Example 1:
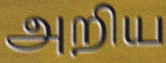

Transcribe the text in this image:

அறிய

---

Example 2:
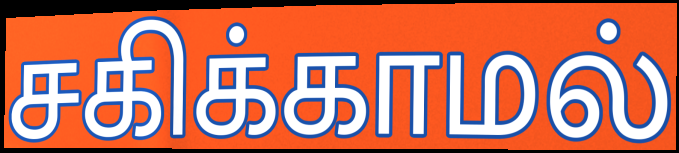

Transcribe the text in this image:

சகிக்காமல்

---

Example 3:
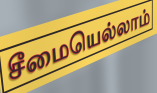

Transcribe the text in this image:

சீமையெல்லாம்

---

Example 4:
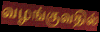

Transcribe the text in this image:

வழங்குவதில்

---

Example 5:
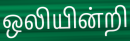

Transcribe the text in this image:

ஒலியின்றி